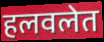
हलवलेत